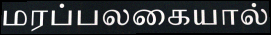
மரப்பலகையால்